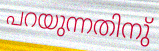
പറയുന്നതിനു്